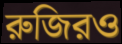
রুজিরও